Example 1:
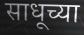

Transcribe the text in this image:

साधूच्या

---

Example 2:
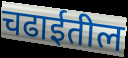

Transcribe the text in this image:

चढाईतील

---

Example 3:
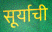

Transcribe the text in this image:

सूर्याची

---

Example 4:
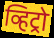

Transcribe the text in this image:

व्हिट्रो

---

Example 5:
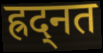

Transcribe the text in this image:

ह्रद्नत